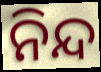
ନିନ୍ଦ